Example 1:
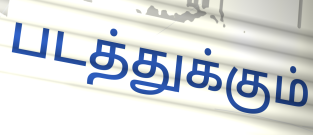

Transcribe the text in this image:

படத்துக்கும்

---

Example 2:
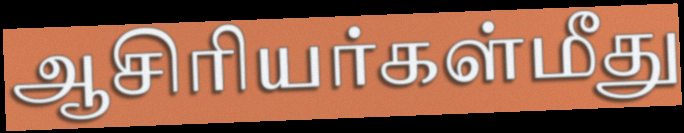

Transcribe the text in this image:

ஆசிரியர்கள்மீது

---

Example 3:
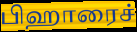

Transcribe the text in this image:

பிஹாரைச்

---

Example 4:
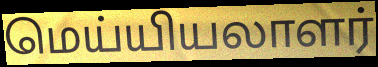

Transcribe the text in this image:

மெய்யியலாளர்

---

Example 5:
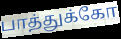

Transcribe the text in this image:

பாத்துக்கோ